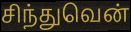
சிந்துவென்